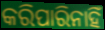
କରିପାରିନାହିଁ